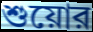
শুয়োর